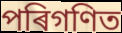
পৰিগণিত